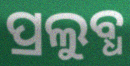
ପ୍ରଲୁବ୍ଧ